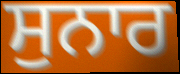
ਸੁਨਾਰ